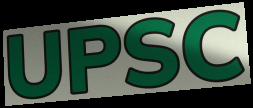
UPSC